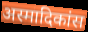
अस्मादिकांस